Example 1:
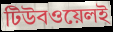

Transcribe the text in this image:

টিউবওয়েলই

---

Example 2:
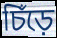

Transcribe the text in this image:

চিঁড়ে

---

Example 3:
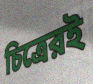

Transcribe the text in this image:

চিত্রেরই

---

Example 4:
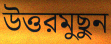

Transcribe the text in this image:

উত্তরমুছুন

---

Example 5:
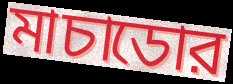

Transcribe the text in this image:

মাচাডোর